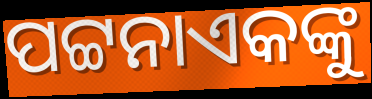
ପଟ୍ଟନାଏକଙ୍କୁ